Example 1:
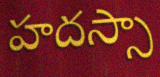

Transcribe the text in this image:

హదస్సా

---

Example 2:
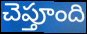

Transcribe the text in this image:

చెప్తూంది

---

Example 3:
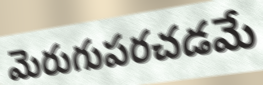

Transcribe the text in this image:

మెరుగుపరచడమే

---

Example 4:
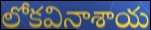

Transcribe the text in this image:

లోకవినాశాయ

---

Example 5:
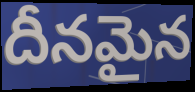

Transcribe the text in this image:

దీనమైన